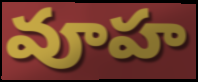
వూహ